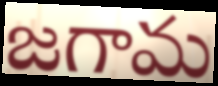
జగామ